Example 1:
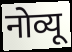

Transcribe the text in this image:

नोव्यू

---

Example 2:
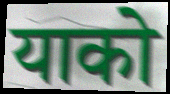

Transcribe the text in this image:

याको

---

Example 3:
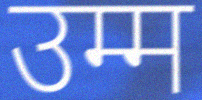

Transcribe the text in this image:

उम्म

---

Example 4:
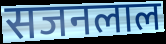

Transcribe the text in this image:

सजनलाल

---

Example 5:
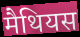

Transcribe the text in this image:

मैथियस